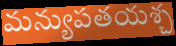
మన్యుపతయశ్చ